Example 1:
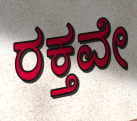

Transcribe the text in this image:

ರಕ್ತವೇ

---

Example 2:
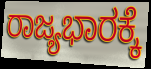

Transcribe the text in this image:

ರಾಜ್ಯಭಾರಕ್ಕೆ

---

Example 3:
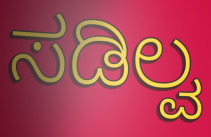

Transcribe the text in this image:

ಸಡಿಲ್ವ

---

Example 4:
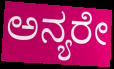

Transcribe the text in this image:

ಅನ್ಯರೇ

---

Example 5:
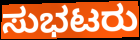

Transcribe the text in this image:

ಸುಭಟರು